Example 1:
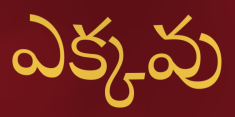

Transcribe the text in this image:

ఎక్కవు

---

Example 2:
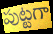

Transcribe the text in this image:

పుట్టగా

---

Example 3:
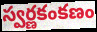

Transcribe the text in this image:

స్వర్ణకంకణం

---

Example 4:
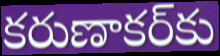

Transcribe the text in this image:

కరుణాకర్‌కు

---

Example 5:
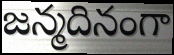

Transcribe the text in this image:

జన్మదినంగా